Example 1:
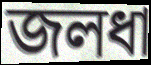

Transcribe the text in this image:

জলধা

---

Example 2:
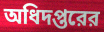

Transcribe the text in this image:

অধিদপ্তরের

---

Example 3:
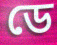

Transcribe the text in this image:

ডে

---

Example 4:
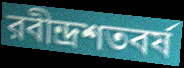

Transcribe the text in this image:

রবীন্দ্রশতবর্ষ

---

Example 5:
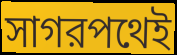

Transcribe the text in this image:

সাগরপথেই